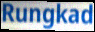
Rungkad